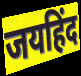
जयहिंद